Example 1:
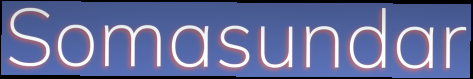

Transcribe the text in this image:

Somasundar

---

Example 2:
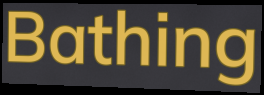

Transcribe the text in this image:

Bathing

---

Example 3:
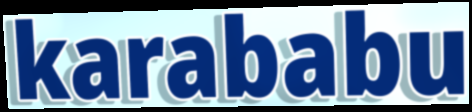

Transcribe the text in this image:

karababu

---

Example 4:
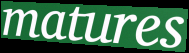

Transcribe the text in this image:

matures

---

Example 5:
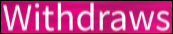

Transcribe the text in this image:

Withdraws